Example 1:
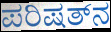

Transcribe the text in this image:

ಪರಿಷತ್‌ನ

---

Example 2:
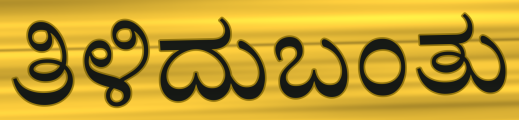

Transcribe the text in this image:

ತಿಳಿದುಬಂತು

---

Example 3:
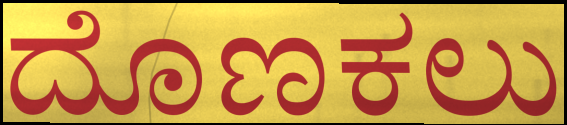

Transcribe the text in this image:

ದೊಣಕಲು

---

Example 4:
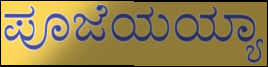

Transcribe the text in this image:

ಪೂಜೆಯಯ್ಯಾ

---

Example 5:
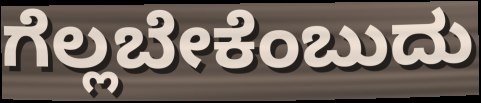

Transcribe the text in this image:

ಗೆಲ್ಲಬೇಕೆಂಬುದು